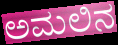
ಅಮಲಿನ